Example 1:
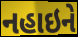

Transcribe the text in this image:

નહાઇને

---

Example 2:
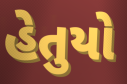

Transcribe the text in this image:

હેતુયો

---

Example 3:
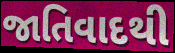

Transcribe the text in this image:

જાતિવાદથી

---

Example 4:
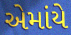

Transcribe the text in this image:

એમાંયે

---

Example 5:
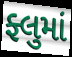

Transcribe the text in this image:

ફ્લુમાં